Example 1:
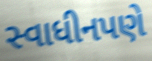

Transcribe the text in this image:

સ્વાધીનપણે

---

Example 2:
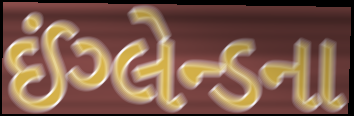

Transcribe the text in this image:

ઈંગ્લેન્ડના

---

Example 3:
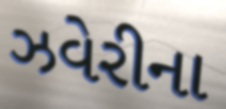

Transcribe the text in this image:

ઝવેરીના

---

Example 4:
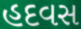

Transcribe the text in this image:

હદવસ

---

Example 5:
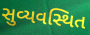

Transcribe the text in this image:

સુવ્યવસ્થિત